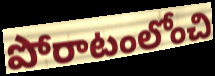
పోరాటంలోంచి